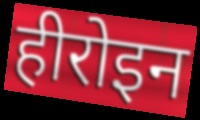
हीरोइन